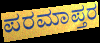
ಪರಮಾಪ್ತರ